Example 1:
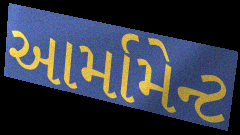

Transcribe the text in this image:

આર્મામેન્ટ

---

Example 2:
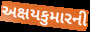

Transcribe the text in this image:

અક્ષયકુમારની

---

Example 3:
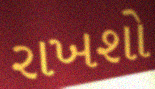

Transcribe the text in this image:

રાખશો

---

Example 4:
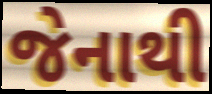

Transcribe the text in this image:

જેનાથી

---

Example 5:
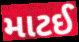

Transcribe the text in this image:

માટઈ